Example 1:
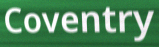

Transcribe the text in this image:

Coventry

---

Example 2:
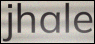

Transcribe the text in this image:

jhale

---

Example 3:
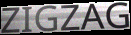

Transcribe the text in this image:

ZIGZAG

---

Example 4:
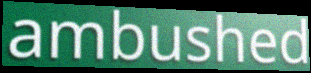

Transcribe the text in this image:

ambushed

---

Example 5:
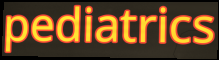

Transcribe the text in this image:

pediatrics